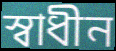
স্বাধীন